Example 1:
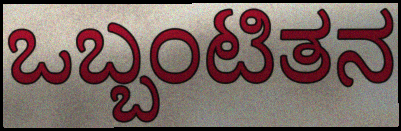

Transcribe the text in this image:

ಒಬ್ಬಂಟಿತನ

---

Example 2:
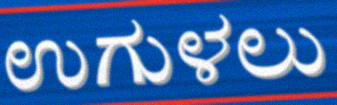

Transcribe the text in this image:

ಉಗುಳಲು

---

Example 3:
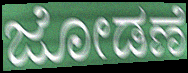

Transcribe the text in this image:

ಜೋಡಣೆ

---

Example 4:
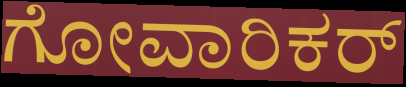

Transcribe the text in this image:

ಗೋವಾರಿಕರ್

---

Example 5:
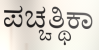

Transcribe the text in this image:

ಪಚ್ಚತ್ಥಿಕಾ